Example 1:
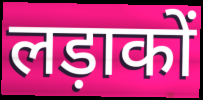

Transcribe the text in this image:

लड़ाकों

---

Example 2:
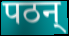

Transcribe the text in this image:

पठन्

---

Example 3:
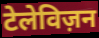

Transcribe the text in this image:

टेलेविज़न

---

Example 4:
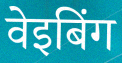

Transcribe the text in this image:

वेइबिंग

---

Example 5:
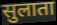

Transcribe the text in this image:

सुलाता